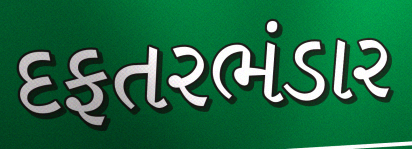
દફતરભંડાર